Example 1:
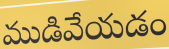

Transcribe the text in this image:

ముడివేయడం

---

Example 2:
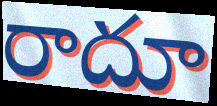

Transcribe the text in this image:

రాదూ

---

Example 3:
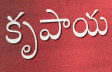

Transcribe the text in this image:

కృపాయ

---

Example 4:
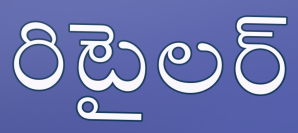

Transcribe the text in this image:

రిటైలర్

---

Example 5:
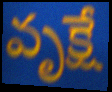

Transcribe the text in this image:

వృక్షే